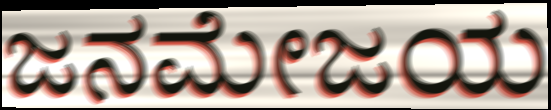
ಜನಮೇಜಯ